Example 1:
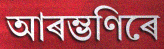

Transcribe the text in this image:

আৰম্ভণিৰে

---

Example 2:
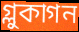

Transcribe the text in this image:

গ্লুকাগন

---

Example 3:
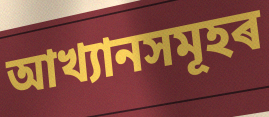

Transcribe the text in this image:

আখ্যানসমূহৰ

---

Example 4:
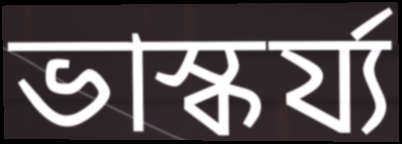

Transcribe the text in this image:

ভাস্কৰ্য্য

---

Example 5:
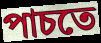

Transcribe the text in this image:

পাচতে